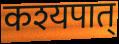
कश्यपात्